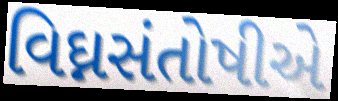
વિઘ્નસંતોષીએ